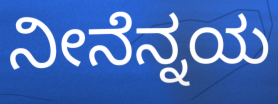
ನೀನೆನ್ನಯ